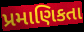
પ્રમાણિકતા